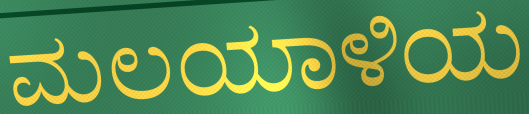
ಮಲಯಾಳಿಯ